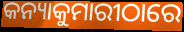
କନ୍ୟାକୁମାରୀଠାରେ